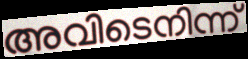
അവിടെനിന്ന്